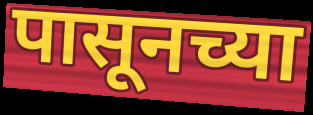
पासूनच्या